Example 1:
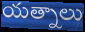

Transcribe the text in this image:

యత్నాలు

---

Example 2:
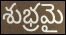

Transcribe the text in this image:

శుభ్రమై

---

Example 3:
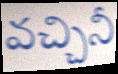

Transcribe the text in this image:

వచ్చినీ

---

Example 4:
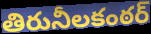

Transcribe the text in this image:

తిరునీలకంఠర్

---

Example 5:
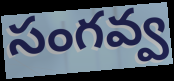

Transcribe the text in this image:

సంగవ్వ